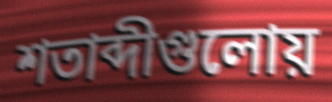
শতাব্দীগুলোয়